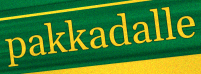
pakkadalle